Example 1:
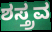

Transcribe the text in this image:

ಶಸ್ತ್ರವ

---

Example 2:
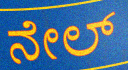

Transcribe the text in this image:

ನೇಲ್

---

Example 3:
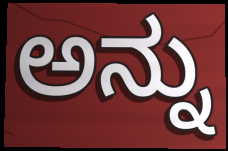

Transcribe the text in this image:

ಅನ್ನು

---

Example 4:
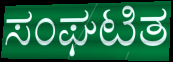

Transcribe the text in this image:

ಸಂಘಟಿತ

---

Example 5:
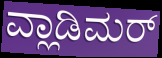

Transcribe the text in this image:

ವ್ಲಾಡಿಮರ್